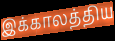
இக்காலத்திய